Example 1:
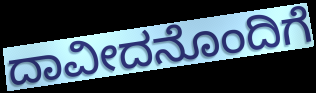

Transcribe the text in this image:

ದಾವೀದನೊಂದಿಗೆ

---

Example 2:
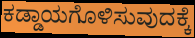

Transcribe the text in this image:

ಕಡ್ಡಾಯಗೊಳಿಸುವುದಕ್ಕೆ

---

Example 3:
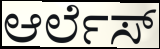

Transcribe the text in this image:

ಆರ್ಲೆಸ್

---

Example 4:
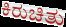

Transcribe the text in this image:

ಕಿರುಚಿತು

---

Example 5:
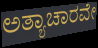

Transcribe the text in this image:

ಅತ್ಯಾಚಾರವೇ